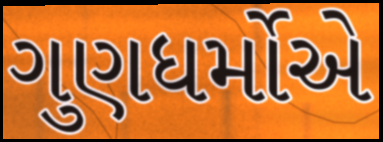
ગુણધર્મોએ